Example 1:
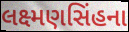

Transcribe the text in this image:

લક્ષ્મણસિંહના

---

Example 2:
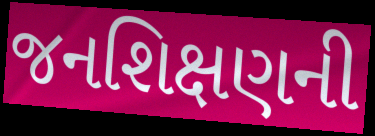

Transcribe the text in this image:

જનશિક્ષણની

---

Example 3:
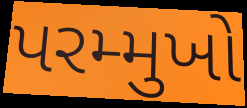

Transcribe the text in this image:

પરમ્મુખો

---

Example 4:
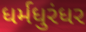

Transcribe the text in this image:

ધર્મધુરંધર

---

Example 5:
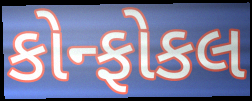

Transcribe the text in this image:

કોન્ફોકલ